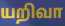
யறிவா